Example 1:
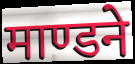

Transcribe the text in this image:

माण्डने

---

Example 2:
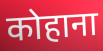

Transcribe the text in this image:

कोहाना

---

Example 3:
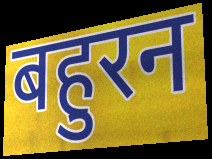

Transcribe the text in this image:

बहुरन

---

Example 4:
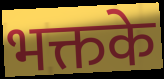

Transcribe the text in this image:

भक्तके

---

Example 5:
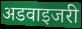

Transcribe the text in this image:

अडवाइजरी